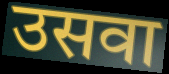
उसवा